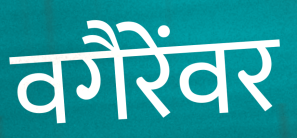
वगैरेंवर